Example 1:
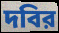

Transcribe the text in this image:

দবির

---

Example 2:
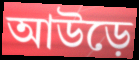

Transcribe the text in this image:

আউড়ে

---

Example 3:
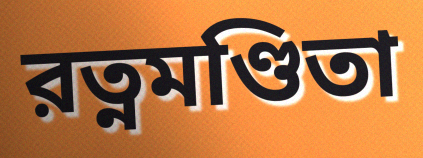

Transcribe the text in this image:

রত্নমণ্ডিতা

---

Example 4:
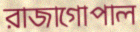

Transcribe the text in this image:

রাজাগোপাল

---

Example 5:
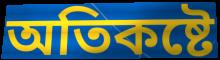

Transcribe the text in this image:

অতিকষ্টে